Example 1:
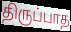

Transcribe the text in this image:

திருப்பாத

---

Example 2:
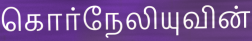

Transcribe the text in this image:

கொர்நேலியுவின்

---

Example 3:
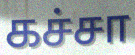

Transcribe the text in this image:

கச்சா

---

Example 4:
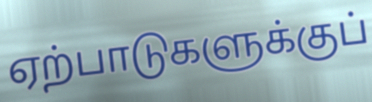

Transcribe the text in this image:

ஏற்பாடுகளுக்குப்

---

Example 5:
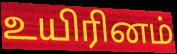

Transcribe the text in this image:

உயிரினம்